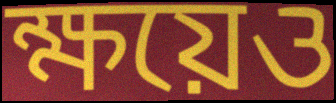
ক্ষয়েও